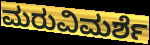
ಮರುವಿಮರ್ಶೆ